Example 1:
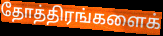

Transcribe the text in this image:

தோத்திரங்களைக்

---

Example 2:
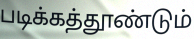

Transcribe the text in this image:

படிக்கத்தூண்டும்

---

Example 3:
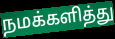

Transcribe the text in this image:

நமக்களித்து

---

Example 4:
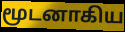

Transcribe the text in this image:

மூடனாகிய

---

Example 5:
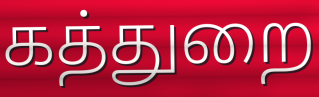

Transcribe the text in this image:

கத்துறை